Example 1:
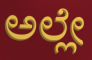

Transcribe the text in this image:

ಅಲ್ಲೇ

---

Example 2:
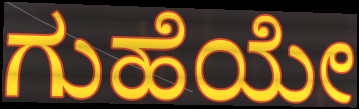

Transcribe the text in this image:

ಗುಹೆಯೇ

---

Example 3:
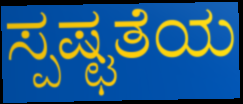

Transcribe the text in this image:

ಸ್ಪಷ್ಟತೆಯ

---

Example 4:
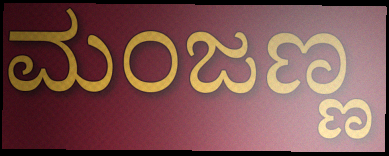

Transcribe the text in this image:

ಮಂಜಣ್ಣ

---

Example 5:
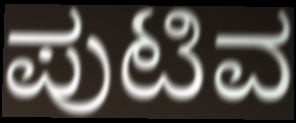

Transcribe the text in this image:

ಪುಟಿವ